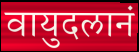
वायुदलानं